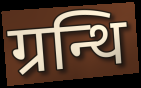
ग्रन्थि